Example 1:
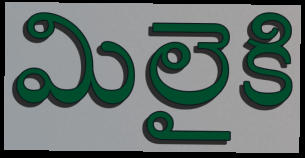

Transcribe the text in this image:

మిలైకి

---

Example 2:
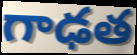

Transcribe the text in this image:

గాఢత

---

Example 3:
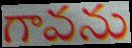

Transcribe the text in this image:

గావను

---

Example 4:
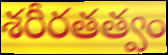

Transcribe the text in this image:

శరీరతత్వం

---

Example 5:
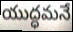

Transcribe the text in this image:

యుద్ధమనే